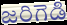
జరిగెడి